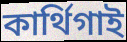
কার্থিগাই